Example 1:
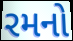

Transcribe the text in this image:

રમનો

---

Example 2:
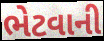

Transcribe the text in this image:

ભેટવાની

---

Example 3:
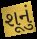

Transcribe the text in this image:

શૂનું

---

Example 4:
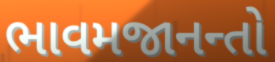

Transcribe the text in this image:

ભાવમજાનન્તો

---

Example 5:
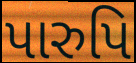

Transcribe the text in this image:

પારુપિ